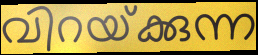
വിറയ്‌ക്കുന്ന